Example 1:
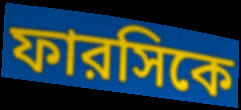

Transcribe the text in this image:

ফারসিকে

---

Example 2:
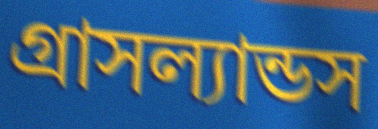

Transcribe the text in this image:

গ্রাসল্যান্ডস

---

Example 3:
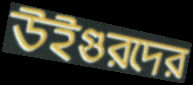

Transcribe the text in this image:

উইগুরদের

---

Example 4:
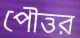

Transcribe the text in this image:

পৌত্তর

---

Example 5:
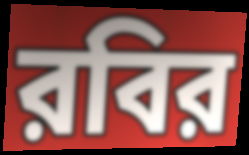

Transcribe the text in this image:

রবির